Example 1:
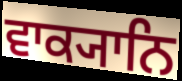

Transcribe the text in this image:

ਵਾਕ੍ਯਾਨਿ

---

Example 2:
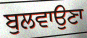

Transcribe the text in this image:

ਬੁਲਵਾਉਣਾ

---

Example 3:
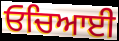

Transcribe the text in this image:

ਓਚਿਆਈ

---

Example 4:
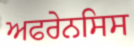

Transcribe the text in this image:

ਅਫਰੇਨਸਿਸ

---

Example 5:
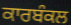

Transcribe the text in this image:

ਕਾਰਬੰਕਲ